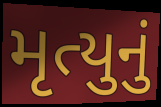
મૃત્યુનું